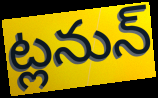
ట్లనున్